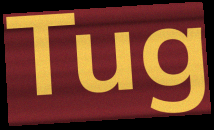
Tug